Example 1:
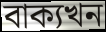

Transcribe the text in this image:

বাক্যখন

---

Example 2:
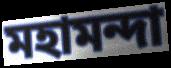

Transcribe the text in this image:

মহামন্দা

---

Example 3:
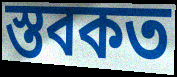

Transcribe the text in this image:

স্তবকত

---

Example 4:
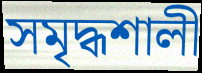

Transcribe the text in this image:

সমৃদ্ধশালী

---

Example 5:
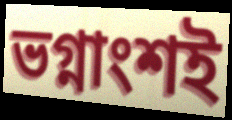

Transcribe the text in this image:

ভগ্নাংশই